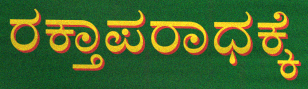
ರಕ್ತಾಪರಾಧಕ್ಕೆ